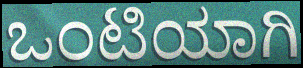
ಒಂಟಿಯಾಗಿ